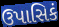
ઉપાસિકં